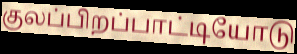
குலப்பிறப்பாட்டியோடு